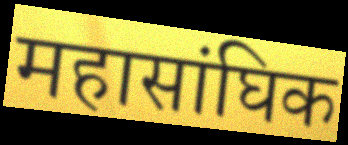
महासांघिक